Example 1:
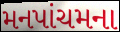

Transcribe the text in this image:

મનપાંચમના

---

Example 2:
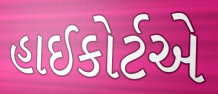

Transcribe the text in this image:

હાઈકોર્ટએ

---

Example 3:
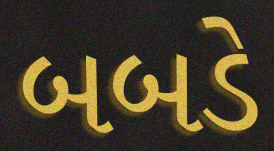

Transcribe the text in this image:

બબડે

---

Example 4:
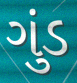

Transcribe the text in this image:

ગુંડ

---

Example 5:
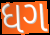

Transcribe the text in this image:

ધગ